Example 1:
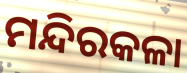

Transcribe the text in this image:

ମନ୍ଦିରକଳା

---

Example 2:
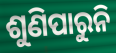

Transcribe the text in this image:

ଶୁଣିପାରୁନି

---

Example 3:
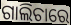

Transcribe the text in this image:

ଗାଲିଚାରେ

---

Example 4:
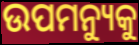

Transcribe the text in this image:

ଉପମନ୍ୟୁକୁ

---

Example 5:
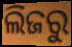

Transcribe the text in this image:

ଲିଜରୁ